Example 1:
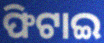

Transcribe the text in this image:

ଫିଟାଇ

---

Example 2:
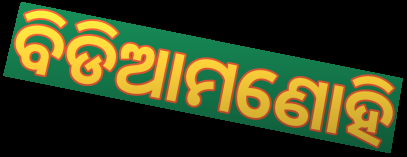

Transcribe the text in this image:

ବିଡିଆମଣୋହି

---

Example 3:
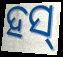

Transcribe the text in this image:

ହସ୍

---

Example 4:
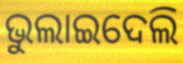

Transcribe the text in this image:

ଭୁଲାଇଦେଲି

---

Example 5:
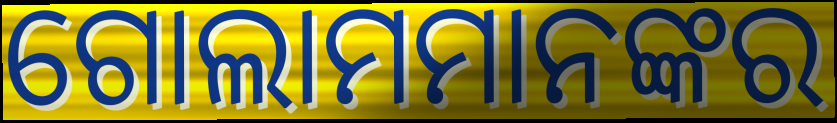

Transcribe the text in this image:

ଗୋଲାମମାନଙ୍କର